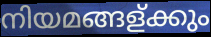
നിയമങ്ങള്ക്കും